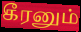
கீரனும்